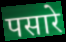
पसारे